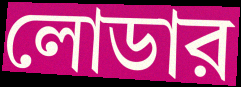
লোডার